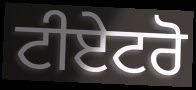
ਟੀਏਟਰੋ